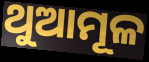
ଥୁଆମୂଳ